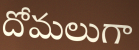
దోమలుగా